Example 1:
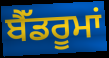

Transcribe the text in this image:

ਬੈੱਡਰੂਮਾਂ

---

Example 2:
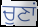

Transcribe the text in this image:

ਚੁਣਾਂ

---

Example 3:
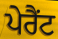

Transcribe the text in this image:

ਪੇਰੈਂਟ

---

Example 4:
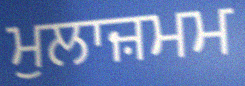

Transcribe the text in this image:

ਮੁਲਾਜ਼ਮਮ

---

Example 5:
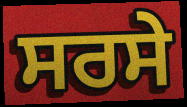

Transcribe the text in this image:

ਸਰਸੇ